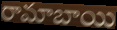
రామాబాయి